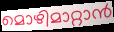
മൊഴിമാറ്റാൻ